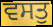
ਵਸਤੁ